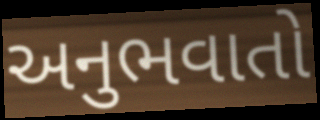
અનુભવાતો